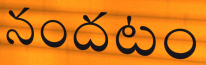
నందటం